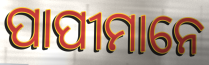
ପାପୀମାନେ